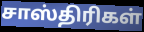
சாஸ்திரிகள்